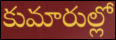
కుమారుల్లో